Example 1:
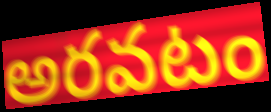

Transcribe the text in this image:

అరవటం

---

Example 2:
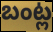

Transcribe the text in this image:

బంట్ల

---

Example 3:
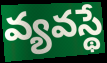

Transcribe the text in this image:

వ్యవస్థే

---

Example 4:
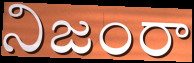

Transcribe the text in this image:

నిజంరా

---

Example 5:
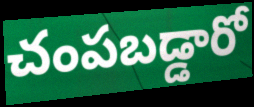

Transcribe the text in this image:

చంపబడ్డారో